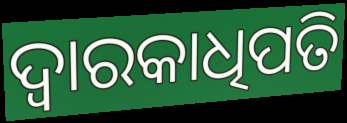
ଦ୍ୱାରକାଧିପତି